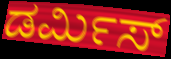
ಡರ್ಮಿಸ್